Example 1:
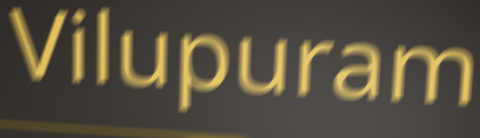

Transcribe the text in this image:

Vilupuram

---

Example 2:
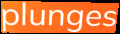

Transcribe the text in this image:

plunges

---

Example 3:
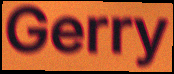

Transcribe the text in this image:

Gerry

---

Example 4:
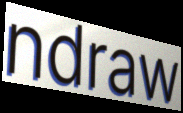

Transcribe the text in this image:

ndraw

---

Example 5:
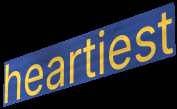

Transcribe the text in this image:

heartiest